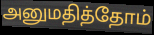
அனுமதித்தோம்